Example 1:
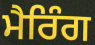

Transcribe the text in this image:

ਮੈਰਿੰਗ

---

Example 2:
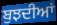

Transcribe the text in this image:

ਬੁਝਦੀਆਂ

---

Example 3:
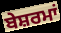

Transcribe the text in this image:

ਬੇਸ਼ਰਮਾਂ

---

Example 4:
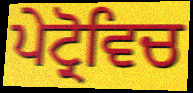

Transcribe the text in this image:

ਪੇਟ੍ਰੋਵਿਚ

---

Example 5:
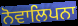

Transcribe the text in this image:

ਨੋਵਾਲਿਪਨਾ